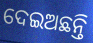
ଦେଇଅଛନ୍ତି